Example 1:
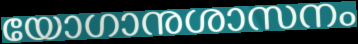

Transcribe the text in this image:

യോഗാനുശാസനം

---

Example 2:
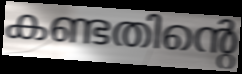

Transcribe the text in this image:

കണ്ടതിന്റെ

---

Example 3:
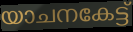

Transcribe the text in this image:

യാചനകേട്ട്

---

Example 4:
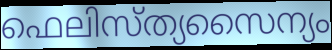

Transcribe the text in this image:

ഫെലിസ്ത്യസൈന്യം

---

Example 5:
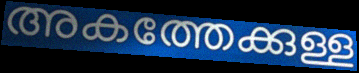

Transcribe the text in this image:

അകത്തേക്കുള്ള